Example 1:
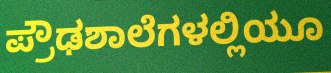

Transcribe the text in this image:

ಪ್ರೌಢಶಾಲೆಗಳಲ್ಲಿಯೂ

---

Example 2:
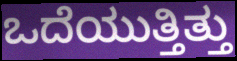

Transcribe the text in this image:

ಒದೆಯುತ್ತಿತ್ತು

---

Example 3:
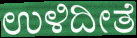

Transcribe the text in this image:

ಉಳಿದೀತೆ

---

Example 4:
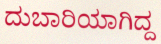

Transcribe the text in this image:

ದುಬಾರಿಯಾಗಿದ್ದ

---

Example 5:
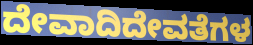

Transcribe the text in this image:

ದೇವಾದಿದೇವತೆಗಳ